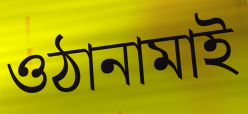
ওঠানামাই